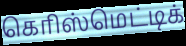
கெரிஸ்மெட்டிக்